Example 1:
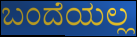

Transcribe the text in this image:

ಬಂದೆಯಲ್ಲ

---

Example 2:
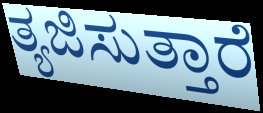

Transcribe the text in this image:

ತ್ಯಜಿಸುತ್ತಾರೆ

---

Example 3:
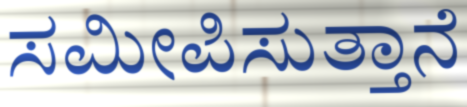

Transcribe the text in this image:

ಸಮೀಪಿಸುತ್ತಾನೆ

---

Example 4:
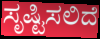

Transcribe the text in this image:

ಸೃಷ್ಟಿಸಲಿದೆ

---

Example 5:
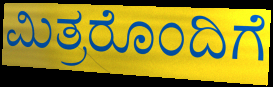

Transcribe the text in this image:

ಮಿತ್ರರೊಂದಿಗೆ